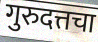
गुरुदत्तचा